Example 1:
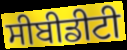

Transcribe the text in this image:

ਸੀਬੀਡੀਟੀ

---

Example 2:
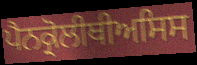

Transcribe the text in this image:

ਪੈਨਕ੍ਰੋਲੀਥੀਅਸਿਸ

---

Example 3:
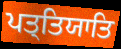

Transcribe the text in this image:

ਪਤ੍ਤਿਯਾਤਿ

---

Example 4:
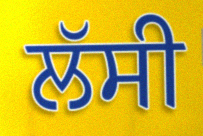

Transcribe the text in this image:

ਲੱਸੀ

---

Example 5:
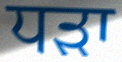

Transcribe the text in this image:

ਧੜਾ